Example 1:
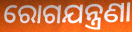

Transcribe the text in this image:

ରୋଗଯନ୍ତ୍ରଣା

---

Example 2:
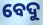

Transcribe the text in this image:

ବେଦୁ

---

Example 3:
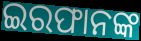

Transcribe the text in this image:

ଇରଫାନଙ୍କ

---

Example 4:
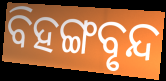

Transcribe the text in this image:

ବିହଙ୍ଗବୃନ୍ଦ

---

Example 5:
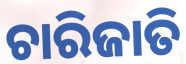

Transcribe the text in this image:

ଚାରିଜାତି